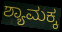
ಶ್ಯಾಮಕ್ಕ